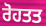
ਰੋਹਤਤ